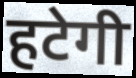
हटेगी